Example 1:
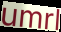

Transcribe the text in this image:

umrl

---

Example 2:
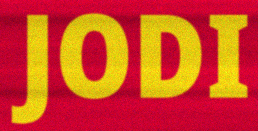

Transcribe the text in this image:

JODI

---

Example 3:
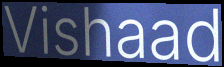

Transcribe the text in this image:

Vishaad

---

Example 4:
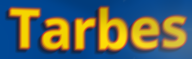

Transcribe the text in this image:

Tarbes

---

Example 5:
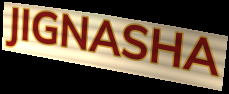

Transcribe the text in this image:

JIGNASHA